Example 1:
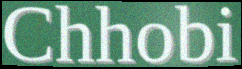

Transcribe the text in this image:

Chhobi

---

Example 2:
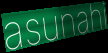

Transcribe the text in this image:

asunahi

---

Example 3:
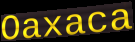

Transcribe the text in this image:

Oaxaca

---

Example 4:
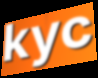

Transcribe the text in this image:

kyc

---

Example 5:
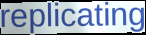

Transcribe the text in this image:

replicating